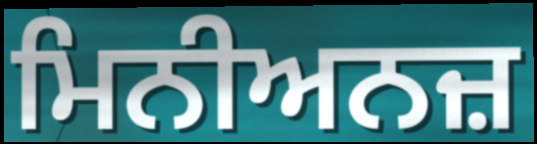
ਮਿਨੀਅਨਜ਼